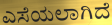
ಎಸೆಯಲಾಗಿದೆ